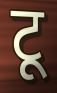
टू